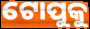
ଟୋପୁକୁ